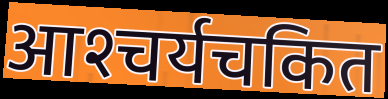
आश्चर्यचकित